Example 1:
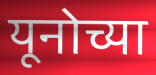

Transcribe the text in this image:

यूनोच्या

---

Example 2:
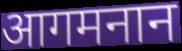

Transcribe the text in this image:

आगमनान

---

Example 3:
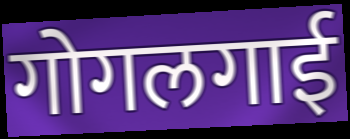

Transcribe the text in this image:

गोगलगाई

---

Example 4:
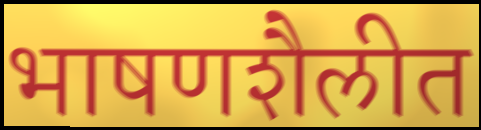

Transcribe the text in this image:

भाषणशैलीत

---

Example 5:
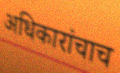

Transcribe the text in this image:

अधिकारांचाच